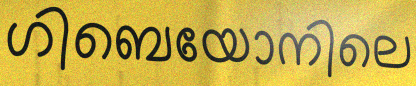
ഗിബെയോനിലെ